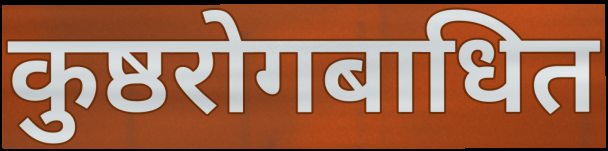
कुष्ठरोगबाधित